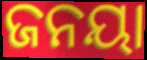
ଜନୟା